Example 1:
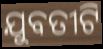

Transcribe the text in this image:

ଯୁବତୀଟି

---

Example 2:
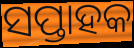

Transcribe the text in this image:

ସପ୍ତାହକ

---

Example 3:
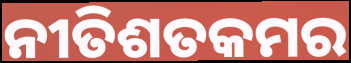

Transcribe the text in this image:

ନୀତିଶତକମର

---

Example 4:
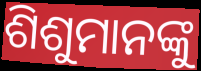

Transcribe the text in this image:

ଶିଶୁମାନଙ୍କୁ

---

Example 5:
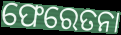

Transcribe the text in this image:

ଫେରେତନା